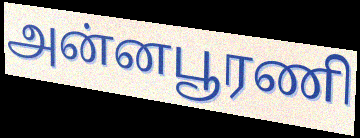
அன்னபூரணி